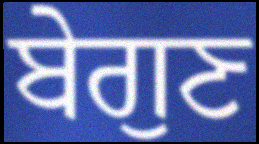
ਬੇਗੁਣ